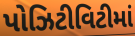
પોઝિટીવિટીમાં